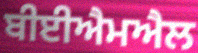
ਬੀਈਐਮਐਲ